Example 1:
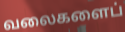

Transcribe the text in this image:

வலைகளைப்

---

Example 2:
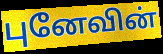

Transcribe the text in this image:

புனேவின்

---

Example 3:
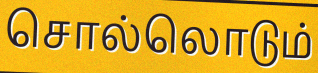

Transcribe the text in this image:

சொல்லொடும்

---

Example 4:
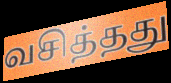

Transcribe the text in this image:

வசித்தது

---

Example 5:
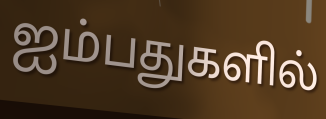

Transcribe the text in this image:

ஐம்பதுகளில்